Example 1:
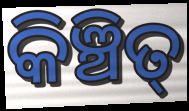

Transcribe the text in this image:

କିଞ୍ଚିତ୍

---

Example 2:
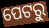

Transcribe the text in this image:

ପେଟରୁ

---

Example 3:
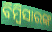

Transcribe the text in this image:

ବିମ୍ବିସାରଙ୍କ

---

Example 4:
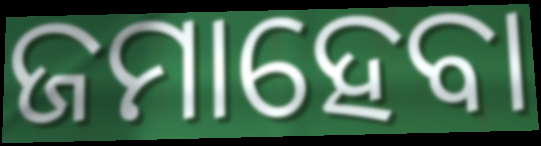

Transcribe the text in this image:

ଜମାହେବା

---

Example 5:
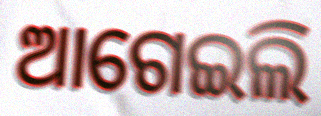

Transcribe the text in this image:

ଆଗେଇଲି